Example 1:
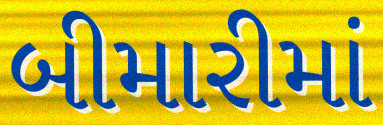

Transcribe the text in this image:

બીમારીમાં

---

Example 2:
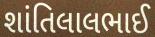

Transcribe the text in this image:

શાંતિલાલભાઈ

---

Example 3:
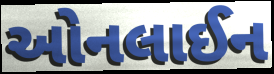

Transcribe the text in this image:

ઓનલાઈન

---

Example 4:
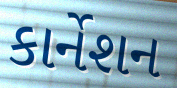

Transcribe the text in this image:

કાર્નેશન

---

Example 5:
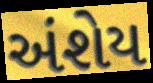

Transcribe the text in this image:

અંશેય